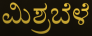
ಮಿಶ್ರಬೆಳೆ